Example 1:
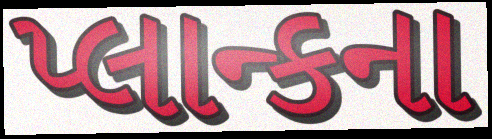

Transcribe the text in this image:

પ્લાન્કના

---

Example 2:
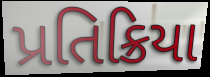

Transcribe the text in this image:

પ્રતિક્રિયા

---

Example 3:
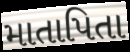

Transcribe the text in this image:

માતાપિતા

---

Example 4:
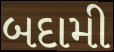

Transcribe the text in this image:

બદામી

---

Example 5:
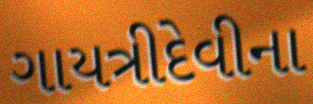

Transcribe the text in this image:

ગાયત્રીદેવીના